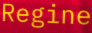
Regine